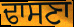
ਢਾਸਣਾ